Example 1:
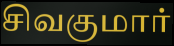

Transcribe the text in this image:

சிவகுமார்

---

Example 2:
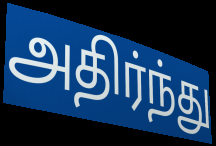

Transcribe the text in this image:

அதிர்ந்து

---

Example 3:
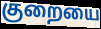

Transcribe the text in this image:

குறையை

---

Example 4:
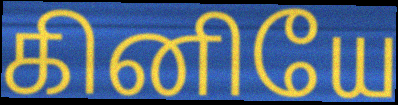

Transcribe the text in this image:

கினியே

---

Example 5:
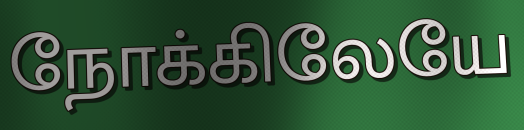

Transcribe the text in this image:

நோக்கிலேயே